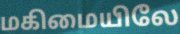
மகிமையிலே